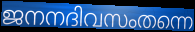
ജനനദിവസംതന്നെ